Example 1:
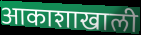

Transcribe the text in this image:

आकाशाखाली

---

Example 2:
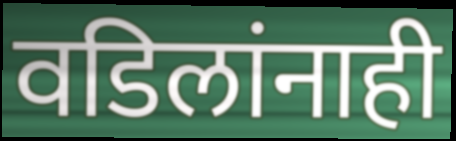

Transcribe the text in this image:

वडिलांनाही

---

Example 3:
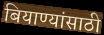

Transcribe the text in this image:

बियाण्यांसाठी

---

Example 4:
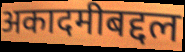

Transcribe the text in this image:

अकादमीबद्दल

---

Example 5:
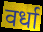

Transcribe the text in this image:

वर्धा